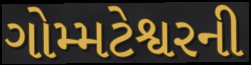
ગોમ્મટેશ્વરની